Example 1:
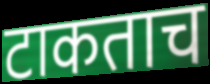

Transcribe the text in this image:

टाकताच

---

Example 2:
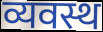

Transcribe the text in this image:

व्यवस्थ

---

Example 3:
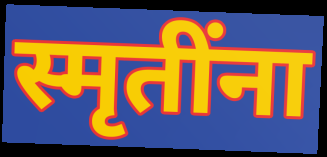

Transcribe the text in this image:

स्मृतींना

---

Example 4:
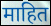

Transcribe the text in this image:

माहित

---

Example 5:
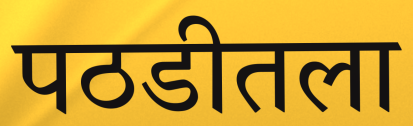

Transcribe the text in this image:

पठडीतला